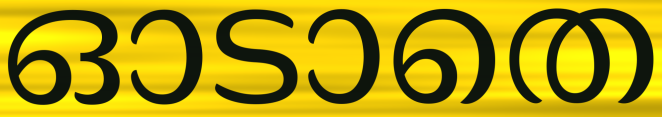
ഓടാതെ